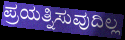
ಪ್ರಯತ್ನಿಸುವುದಿಲ್ಲ